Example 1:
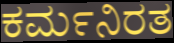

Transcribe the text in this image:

ಕರ್ಮನಿರತ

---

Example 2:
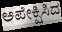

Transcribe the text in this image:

ಅಪೇಕ್ಷಿಸಿದ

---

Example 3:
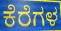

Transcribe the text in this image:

ಕೆರೆಗಳ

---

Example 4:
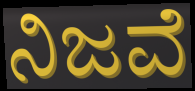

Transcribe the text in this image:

ನಿಜವೆ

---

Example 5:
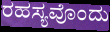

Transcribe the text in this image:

ರಹಸ್ಯವೊಂದು